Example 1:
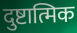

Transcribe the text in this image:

दुष्टात्मिक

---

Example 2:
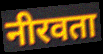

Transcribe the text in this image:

नीरवता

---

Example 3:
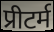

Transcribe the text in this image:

प्रीटर्म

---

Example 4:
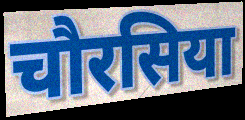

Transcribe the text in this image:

चौरसिया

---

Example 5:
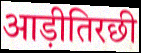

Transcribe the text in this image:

आड़ीतिरछी